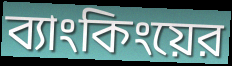
ব্যাংকিংয়ের